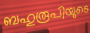
ബഹുരൂപിയുടെ